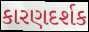
કારણદર્શક